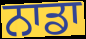
ਨਾਡਾ